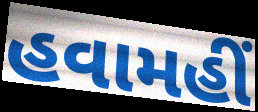
હવામહીં